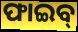
ଫାଇବ୍